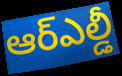
ఆర్ఎల్డీ